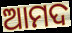
ଆମଦ